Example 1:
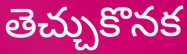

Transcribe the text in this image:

తెచ్చుకొనక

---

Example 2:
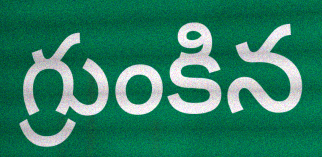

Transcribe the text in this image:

గ్రుంకిన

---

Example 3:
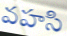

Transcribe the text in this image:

వహసి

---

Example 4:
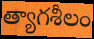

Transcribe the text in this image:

త్యాగశీలం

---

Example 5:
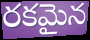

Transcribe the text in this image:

రకమైన